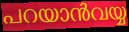
പറയാൻവയ്യ